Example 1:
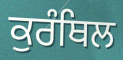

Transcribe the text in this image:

ਕੁਰੰਥਿਲ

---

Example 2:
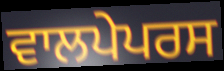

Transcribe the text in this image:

ਵਾਲਪੇਪਰਸ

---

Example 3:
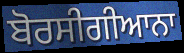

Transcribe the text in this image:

ਬੋਰਸੀਗੀਆਨਾ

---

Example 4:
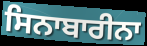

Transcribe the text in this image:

ਸਿਨਾਬਾਰੀਨਾ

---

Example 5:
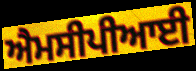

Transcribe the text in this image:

ਐਮਸੀਪੀਆਈ